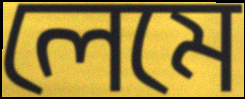
লেমে